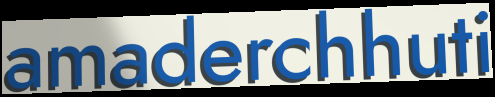
amaderchhuti